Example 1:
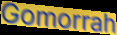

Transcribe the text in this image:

Gomorrah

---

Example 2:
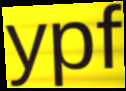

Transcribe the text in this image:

ypf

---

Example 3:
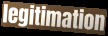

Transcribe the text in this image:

legitimation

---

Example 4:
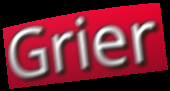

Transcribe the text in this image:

Grier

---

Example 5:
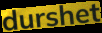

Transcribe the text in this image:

durshet